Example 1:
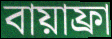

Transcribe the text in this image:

বায়াফ্রা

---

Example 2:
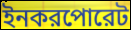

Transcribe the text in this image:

ইনকরপোরেট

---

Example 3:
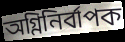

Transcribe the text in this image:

অগ্নিনির্বাপক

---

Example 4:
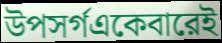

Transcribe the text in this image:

উপসর্গএকেবারেই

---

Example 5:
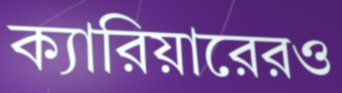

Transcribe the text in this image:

ক্যারিয়ারেরও